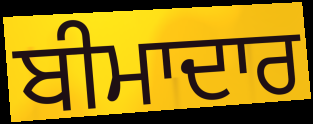
ਬੀਮਾਦਾਰ